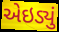
એઇડ્યું